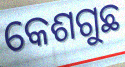
କେଶଗୁଛ